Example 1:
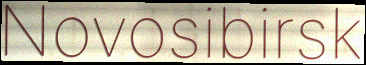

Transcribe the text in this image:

Novosibirsk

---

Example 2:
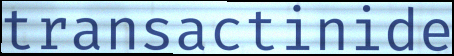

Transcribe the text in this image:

transactinide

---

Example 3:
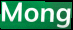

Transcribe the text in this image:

Mong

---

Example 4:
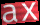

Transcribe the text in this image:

ax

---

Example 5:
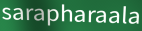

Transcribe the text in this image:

sarapharaala